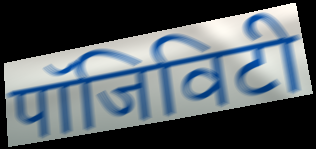
पॉजिविटी